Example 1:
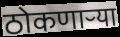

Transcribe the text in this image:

ठोकणाऱ्या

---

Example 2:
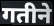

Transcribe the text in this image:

गतीने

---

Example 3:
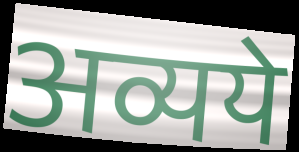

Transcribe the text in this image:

अव्यये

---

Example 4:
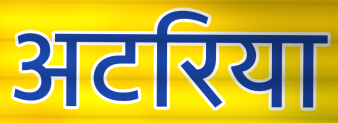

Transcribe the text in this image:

अटरिया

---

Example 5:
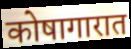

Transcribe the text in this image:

कोषागारात